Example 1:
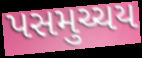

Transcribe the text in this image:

પસમુચ્ચય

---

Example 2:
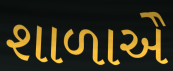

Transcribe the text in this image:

શાળાએે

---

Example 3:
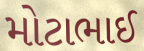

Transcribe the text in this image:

મોટાભાઈ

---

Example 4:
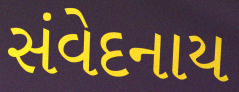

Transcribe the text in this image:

સંવેદનાય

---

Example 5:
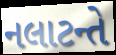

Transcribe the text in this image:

નલાટન્તે